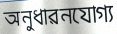
অনুধাৱনযোগ্য